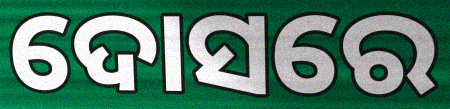
ଦୋସରେ